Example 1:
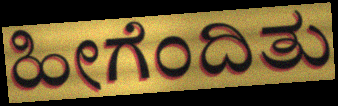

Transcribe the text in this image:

ಹೀಗೆಂದಿತು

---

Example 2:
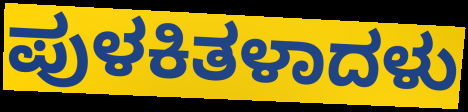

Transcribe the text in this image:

ಪುಳಕಿತಳಾದಳು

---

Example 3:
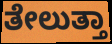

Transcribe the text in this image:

ತೇಲುತ್ತಾ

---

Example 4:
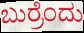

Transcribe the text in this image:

ಬುರ್ರೆಂದು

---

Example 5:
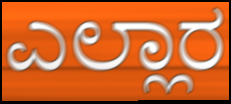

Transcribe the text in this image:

ಎಲ್ಲಾರ